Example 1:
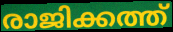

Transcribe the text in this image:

രാജിക്കത്ത്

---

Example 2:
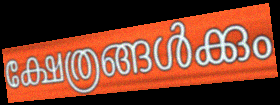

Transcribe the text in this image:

ക്ഷേത്രങ്ങൾക്കും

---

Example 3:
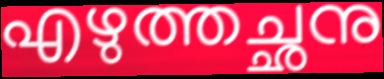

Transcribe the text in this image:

എഴുത്തച്ഛനു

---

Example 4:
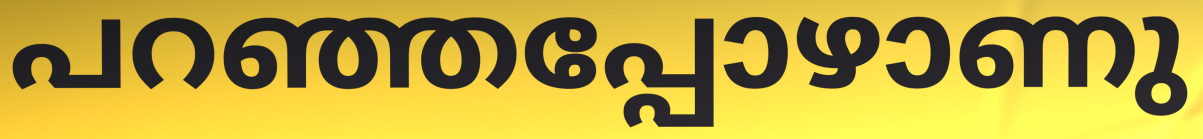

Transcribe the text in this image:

പറഞ്ഞപ്പോഴാണു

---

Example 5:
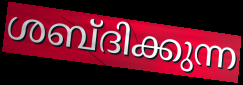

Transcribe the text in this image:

ശബ്ദിക്കുന്ന